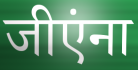
जीएंना